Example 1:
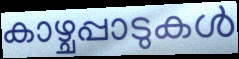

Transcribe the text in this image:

കാഴ്ചപ്പാടുകൾ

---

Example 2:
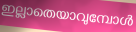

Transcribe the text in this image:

ഇല്ലാതെയാവുമ്പോൾ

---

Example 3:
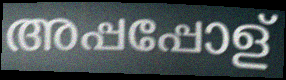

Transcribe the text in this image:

അപ്പപ്പോള്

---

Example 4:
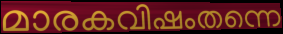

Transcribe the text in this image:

മാരകവിഷംതന്നെ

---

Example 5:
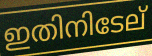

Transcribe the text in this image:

ഇതിനിടേല്